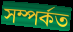
সম্পৰ্কত